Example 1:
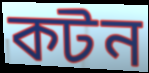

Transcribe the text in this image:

কটন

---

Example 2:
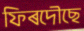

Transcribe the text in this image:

ফিৰদৌছে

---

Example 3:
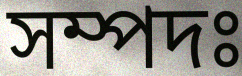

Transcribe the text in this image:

সম্পদঃ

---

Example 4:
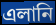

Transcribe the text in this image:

এলানি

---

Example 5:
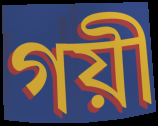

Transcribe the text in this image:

গয়ী